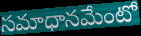
సమాధానమేంటో